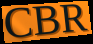
CBR